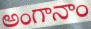
అంగానాం